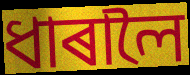
ধাৰালৈ